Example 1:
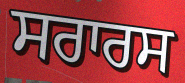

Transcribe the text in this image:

ਸਰਾਰਸ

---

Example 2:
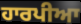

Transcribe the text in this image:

ਹਾਰਪੀਆ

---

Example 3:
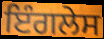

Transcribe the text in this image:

ਇੰਗਲੇਸ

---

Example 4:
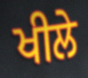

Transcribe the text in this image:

ਖੀਲੇ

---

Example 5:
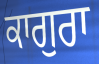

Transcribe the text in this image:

ਕਾਗੁਰਾ